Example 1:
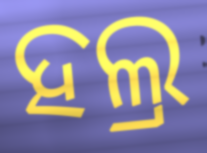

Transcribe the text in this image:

ହଲ୍ର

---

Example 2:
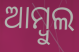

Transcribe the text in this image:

ଆମ୍ବୁଲ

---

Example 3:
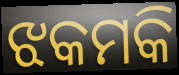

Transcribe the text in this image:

ଝକମକି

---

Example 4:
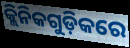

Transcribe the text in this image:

କ୍ଲିନିକଗୁଡ଼ିକରେ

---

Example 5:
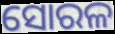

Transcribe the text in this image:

ସୋରଳ